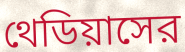
থেডিয়াসের